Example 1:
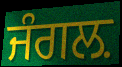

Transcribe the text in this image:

ਜੰਗਲ਼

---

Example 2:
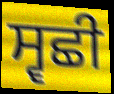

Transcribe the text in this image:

ਸ੍ਵਛੀ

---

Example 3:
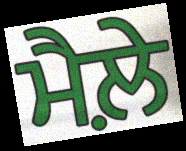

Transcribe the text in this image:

ਮੈਲ਼ੇ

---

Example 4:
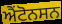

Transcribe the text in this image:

ਐਂਟੋਨਸਨ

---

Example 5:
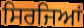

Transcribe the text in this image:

ਸਿਰਜਿਆਂ